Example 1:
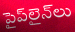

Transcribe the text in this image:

పైప్‌లైన్‌లు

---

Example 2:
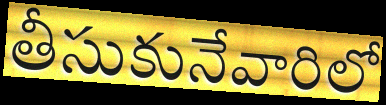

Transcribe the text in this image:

తీసుకునేవారిలో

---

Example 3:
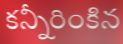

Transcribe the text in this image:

కన్నీరింకిన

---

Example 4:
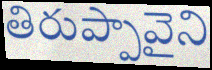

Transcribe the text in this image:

తిరుప్పావైని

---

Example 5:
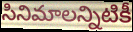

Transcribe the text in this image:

సినిమాలన్నిటికీ